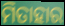
ମିତାହାର